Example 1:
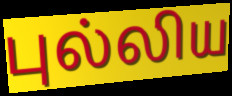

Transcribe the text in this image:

புல்லிய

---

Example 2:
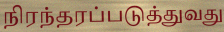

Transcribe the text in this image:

நிரந்தரப்படுத்துவது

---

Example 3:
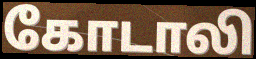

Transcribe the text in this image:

கோடாலி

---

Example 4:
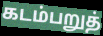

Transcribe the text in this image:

கடம்பறுத்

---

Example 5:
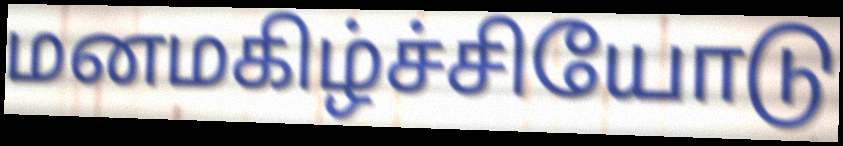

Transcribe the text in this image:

மனமகிழ்ச்சியோடு